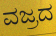
ವಜ್ರದ